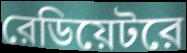
রেডিয়েটরে